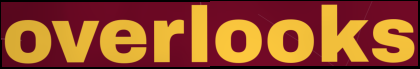
overlooks